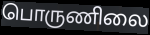
பொருணிலை